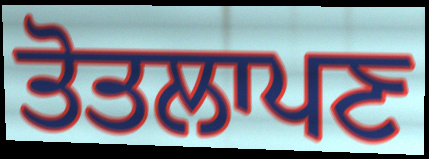
ਤੋਤਲਾਪਣ